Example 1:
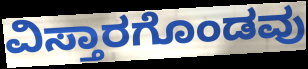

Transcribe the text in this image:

ವಿಸ್ತಾರಗೊಂಡವು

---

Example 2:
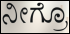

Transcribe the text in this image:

ನೀಗ್ರೊ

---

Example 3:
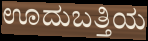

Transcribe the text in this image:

ಊದುಬತ್ತಿಯ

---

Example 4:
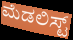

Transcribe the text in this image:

ಮೆಡಲಿಸ್ಟ್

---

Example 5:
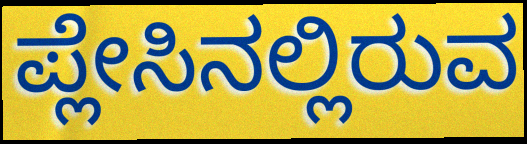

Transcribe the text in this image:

ಪ್ಲೇಸಿನಲ್ಲಿರುವ